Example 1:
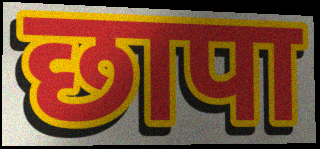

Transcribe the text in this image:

छापा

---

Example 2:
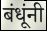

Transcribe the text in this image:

बंधूंनी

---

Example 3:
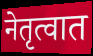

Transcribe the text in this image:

नेतृत्वात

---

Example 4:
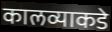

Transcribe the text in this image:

कालव्याकडे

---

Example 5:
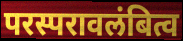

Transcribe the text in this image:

परस्परावलंबित्व